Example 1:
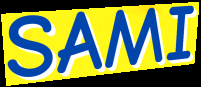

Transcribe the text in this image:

SAMI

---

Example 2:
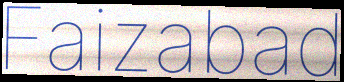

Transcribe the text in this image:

Faizabad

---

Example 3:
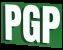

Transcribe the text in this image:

PGP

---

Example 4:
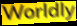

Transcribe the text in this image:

Worldly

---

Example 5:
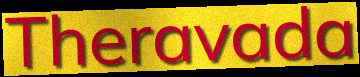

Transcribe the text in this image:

Theravada